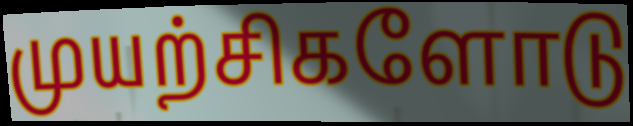
முயற்சிகளோடு